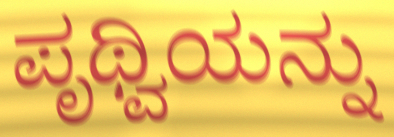
ಪೃಥ್ವಿಯನ್ನು